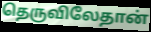
தெருவிலேதான்